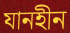
যানহীন